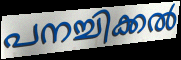
പനച്ചിക്കൽ